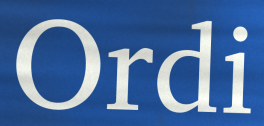
Ordi